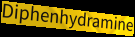
Diphenhydramine